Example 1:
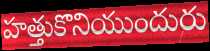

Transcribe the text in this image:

హత్తుకొనియుందురు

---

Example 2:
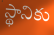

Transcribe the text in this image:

స్థానికు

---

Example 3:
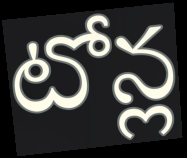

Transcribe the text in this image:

టోన్ల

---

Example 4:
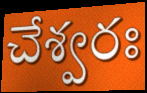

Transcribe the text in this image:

చేశ్వరః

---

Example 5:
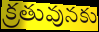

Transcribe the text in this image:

క్రతువునకు